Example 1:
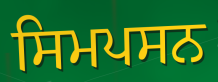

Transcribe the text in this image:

ਸਿਮਪਸਨ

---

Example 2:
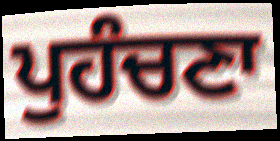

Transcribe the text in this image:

ਪੁਹੰਚਣਾ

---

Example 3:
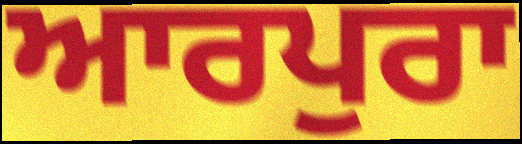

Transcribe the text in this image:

ਆਰਪੁਰਾ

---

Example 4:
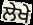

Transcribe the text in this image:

ਲੇਖੇ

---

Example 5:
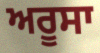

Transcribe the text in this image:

ਅਰੂਸਾ